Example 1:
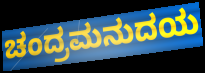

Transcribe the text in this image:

ಚಂದ್ರಮನುದಯ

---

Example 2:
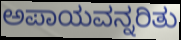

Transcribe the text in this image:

ಅಪಾಯವನ್ನರಿತು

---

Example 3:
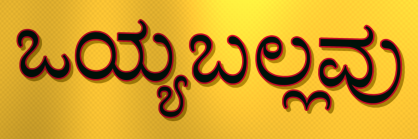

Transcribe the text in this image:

ಒಯ್ಯಬಲ್ಲವು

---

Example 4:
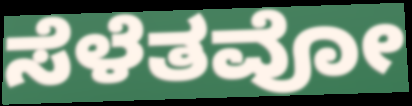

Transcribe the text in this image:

ಸೆಳೆತವೋ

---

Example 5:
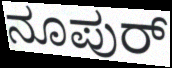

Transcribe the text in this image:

ನೂಪುರ್